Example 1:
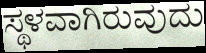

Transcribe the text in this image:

ಸ್ಥಳವಾಗಿರುವುದು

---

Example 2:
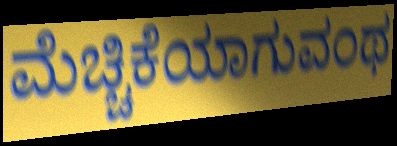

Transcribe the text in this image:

ಮೆಚ್ಚಿಕೆಯಾಗುವಂಥ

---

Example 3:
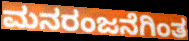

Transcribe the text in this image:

ಮನರಂಜನೆಗಿಂತ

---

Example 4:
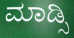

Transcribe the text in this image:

ಮಾಡ್ಸಿ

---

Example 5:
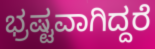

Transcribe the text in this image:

ಭ್ರಷ್ಟವಾಗಿದ್ದರೆ